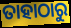
ତାହାଠାରୁ